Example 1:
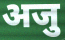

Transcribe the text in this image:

अजु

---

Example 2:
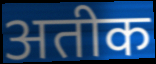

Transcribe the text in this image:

अतीक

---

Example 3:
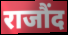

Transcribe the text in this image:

राजौंद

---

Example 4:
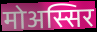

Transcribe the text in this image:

मोअस्सिर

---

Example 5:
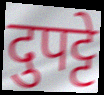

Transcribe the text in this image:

दुपट्टे